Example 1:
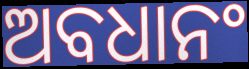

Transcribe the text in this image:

ଅବଧାନଂ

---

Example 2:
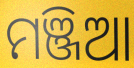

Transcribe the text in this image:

ମଞ୍ଜିଆ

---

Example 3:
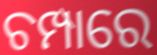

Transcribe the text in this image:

ଚମ୍ପାରେ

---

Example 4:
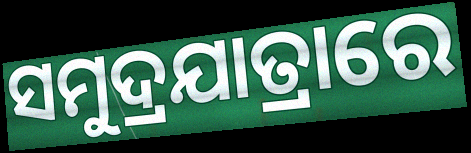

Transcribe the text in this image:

ସମୁଦ୍ରଯାତ୍ରାରେ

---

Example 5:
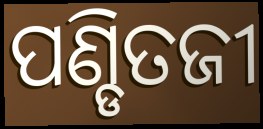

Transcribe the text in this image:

ପଣ୍ଡିତଜୀ